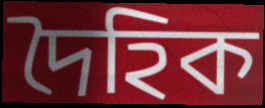
দৈহিক